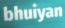
bhuiyan